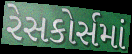
રેસકોર્સમાં